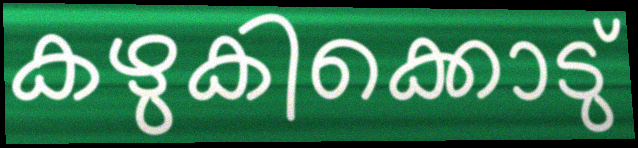
കഴുകിക്കൊടു്